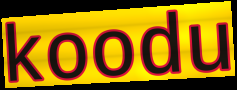
koodu